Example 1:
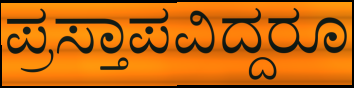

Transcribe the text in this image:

ಪ್ರಸ್ತಾಪವಿದ್ದರೂ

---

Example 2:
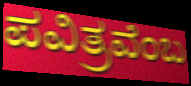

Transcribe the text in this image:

ಪವಿತ್ರವೆಂಬ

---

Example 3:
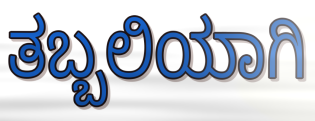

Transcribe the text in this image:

ತಬ್ಬಲಿಯಾಗಿ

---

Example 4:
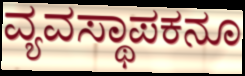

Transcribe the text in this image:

ವ್ಯವಸ್ಥಾಪಕನೂ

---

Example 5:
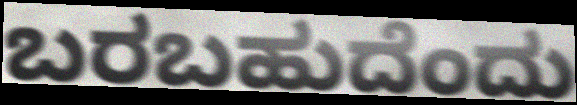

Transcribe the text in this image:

ಬರಬಹುದೆಂದು